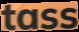
tass